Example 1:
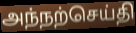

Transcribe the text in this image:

அந்நற்செய்தி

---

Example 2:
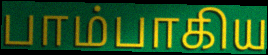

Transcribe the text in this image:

பாம்பாகிய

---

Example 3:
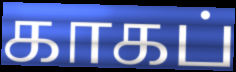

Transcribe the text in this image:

காகப்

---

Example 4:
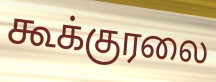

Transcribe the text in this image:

கூக்குரலை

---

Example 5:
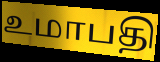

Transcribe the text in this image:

உமாபதி